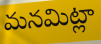
మనమిట్లా